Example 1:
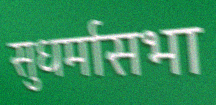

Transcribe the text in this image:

सुधर्मासभा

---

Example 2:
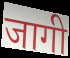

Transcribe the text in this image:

जागी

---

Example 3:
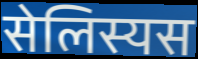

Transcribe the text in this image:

सेलिस्यस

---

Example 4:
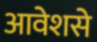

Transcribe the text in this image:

आवेशसे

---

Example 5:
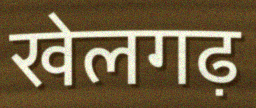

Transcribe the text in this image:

खेलगढ़